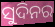
ସୁଦିନର